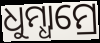
ଧୁମ୍ଧାମ୍ରେ